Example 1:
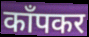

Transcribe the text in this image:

काँपकर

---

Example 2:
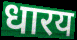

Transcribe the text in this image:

धारय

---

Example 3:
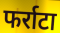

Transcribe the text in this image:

फर्राटा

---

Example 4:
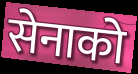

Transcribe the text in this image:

सेनाको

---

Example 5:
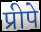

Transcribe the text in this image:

प्रीपे